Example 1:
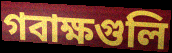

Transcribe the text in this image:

গবাক্ষগুলি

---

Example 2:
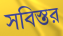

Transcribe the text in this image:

সবিস্তর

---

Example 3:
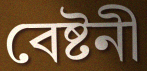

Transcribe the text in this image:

বেষ্টনী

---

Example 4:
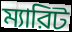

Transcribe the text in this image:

ম্যারিট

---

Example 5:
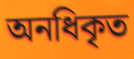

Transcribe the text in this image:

অনধিকৃত